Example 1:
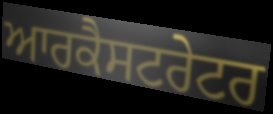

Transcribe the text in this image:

ਆਰਕੈਸਟਰੇਟਰ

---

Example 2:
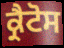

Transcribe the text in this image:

ਕ੍ਰੈਟੋਸ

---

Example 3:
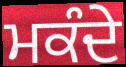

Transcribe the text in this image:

ਮਕੰਦੇ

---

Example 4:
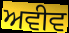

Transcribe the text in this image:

ਅਵੀਵ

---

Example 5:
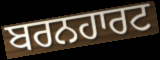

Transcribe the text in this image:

ਬਰਨਹਾਰਟ